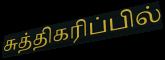
சுத்திகரிப்பில்